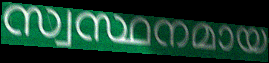
സ്വസ്ഥനമായ